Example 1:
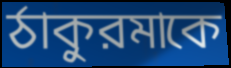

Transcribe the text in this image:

ঠাকুরমাকে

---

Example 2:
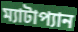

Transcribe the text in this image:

ম্যাটাপ্যান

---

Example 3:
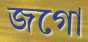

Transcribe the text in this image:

জগো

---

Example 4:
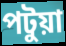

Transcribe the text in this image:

পটুয়া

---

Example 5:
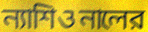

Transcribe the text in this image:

ন্যাশিওনালের